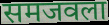
समजवला